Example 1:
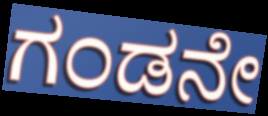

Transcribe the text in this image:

ಗಂಡನೇ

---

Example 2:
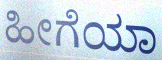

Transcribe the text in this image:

ಹೀಗೆಯಾ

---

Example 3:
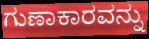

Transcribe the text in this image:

ಗುಣಾಕಾರವನ್ನು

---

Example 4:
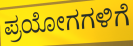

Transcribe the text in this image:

ಪ್ರಯೋಗಗಳಿಗೆ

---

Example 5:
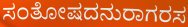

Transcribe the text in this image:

ಸಂತೋಷದನುರಾಗರಸ